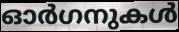
ഓർഗനുകൾ